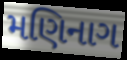
મણિનાગ